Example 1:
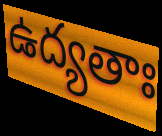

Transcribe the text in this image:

ఉద్యతాః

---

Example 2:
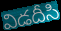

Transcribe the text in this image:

విడదీసి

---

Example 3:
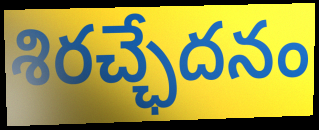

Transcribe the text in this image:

శిరచ్ఛేదనం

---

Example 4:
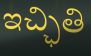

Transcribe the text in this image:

ఇచ్ఛితి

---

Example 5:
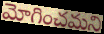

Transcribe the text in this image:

మోగించమని